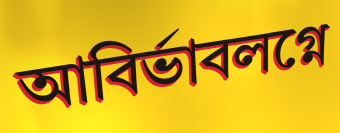
আবির্ভাবলগ্নে